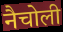
नैचोली